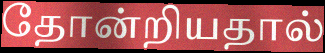
தோன்றியதால்